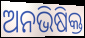
ଅନଭିଷିକ୍ତ